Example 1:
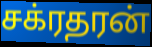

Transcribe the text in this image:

சக்ரதரன்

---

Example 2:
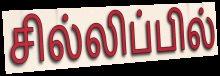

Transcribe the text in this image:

சில்லிப்பில்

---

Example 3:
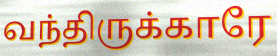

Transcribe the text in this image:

வந்திருக்காரே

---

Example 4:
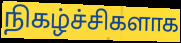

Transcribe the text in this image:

நிகழ்ச்சிகளாக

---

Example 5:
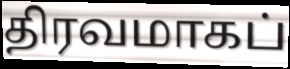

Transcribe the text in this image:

திரவமாகப்